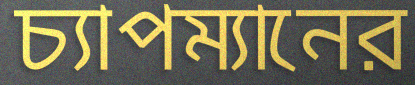
চ্যাপম্যানের